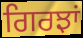
ਗਿਰਝਾਂ